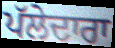
ਪੱਲੇਦਾਰਾ